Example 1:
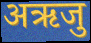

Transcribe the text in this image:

अऋजु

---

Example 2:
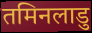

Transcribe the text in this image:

तमिनलाडु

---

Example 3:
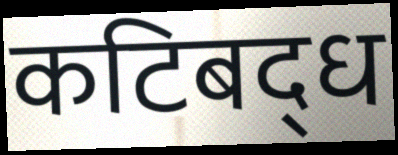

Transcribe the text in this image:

कटिबद्ध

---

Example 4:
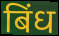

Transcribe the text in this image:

बिंध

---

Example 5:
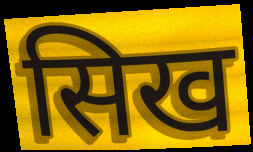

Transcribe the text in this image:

सिख